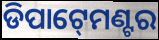
ଡିପାଟ୍‍ମେଣ୍ଟର